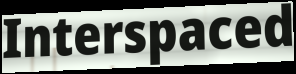
Interspaced